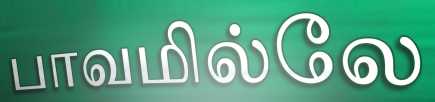
பாவமில்லே